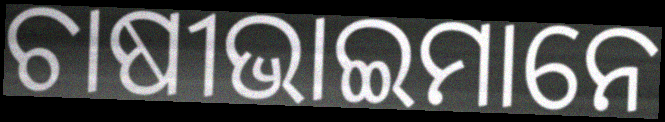
ଚାଷୀଭାଇମାନେ